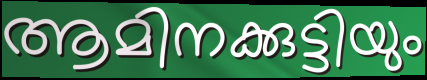
ആമിനക്കുട്ടിയും